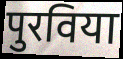
पुरविया